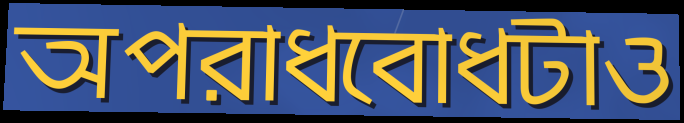
অপরাধবোধটাও